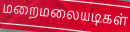
மறைமலையடிகள்